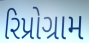
રિપ્રોગ્રામ